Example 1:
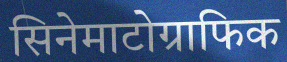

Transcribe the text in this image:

सिनेमाटोग्राफिक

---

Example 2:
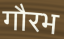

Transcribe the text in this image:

गौरभ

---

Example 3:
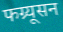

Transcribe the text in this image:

फग्र्यूसन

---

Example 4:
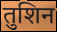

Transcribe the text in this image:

तुशिन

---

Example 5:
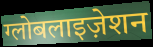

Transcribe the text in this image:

ग्लोबलाइज़ेशन